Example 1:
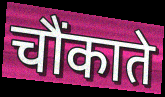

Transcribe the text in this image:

चौंकाते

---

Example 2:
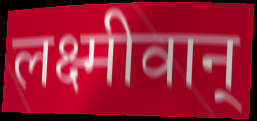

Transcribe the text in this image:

लक्ष्मीवान्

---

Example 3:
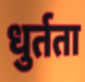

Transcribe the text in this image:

धुर्तता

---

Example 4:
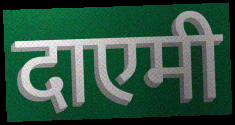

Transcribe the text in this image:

दाएमी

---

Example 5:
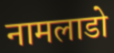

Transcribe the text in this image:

नामलाडो